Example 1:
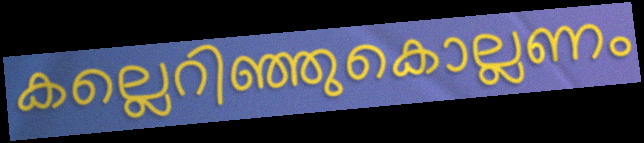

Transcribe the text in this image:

കല്ലെറിഞ്ഞുകൊല്ലണം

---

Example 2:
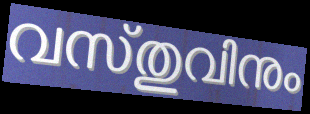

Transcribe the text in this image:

വസ്‌തുവിനും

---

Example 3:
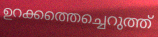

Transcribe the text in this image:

ഉറക്കത്തെച്ചെറുത്ത്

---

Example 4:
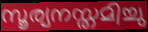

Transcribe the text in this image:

സൂര്യനസ്തമിച്ചു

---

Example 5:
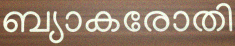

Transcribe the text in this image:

ബ്യാകരോതി